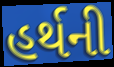
હર્થની